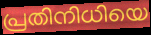
പ്രതിനിധിയെ